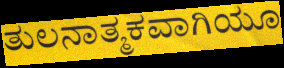
ತುಲನಾತ್ಮಕವಾಗಿಯೂ